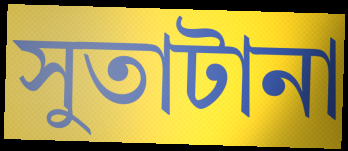
সুতাটানা